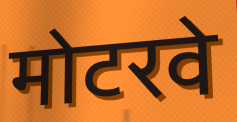
मोटरवे